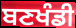
ਬਣਖੰਡੀ